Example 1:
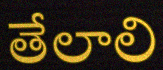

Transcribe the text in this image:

తేలాలి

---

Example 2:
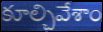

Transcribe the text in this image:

కూల్చివేశాం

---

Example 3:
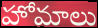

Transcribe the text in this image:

హోమాలు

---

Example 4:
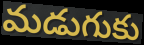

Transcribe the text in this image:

మడుగుకు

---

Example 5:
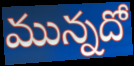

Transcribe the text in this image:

మున్నదో